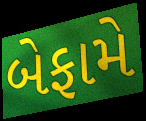
બેફામે